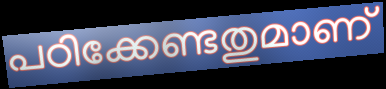
പഠിക്കേണ്ടതുമാണ്